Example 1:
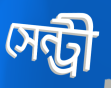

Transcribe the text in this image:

সেন্ট্রী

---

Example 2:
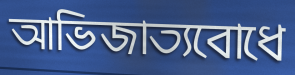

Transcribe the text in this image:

আভিজাত্যবোধে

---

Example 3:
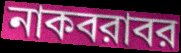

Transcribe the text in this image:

নাকবরাবর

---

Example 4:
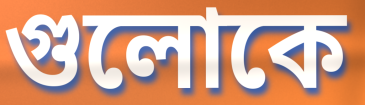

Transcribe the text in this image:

গুলোকে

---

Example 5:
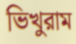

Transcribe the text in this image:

ভিখুরাম